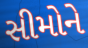
સીમોને